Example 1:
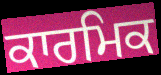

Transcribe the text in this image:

ਕਾਰਮਿਕ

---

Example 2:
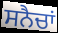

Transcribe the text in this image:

ਸਨੈਚਾਂ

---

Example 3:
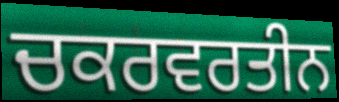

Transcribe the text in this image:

ਚਕਰਵਰਤੀਨ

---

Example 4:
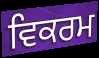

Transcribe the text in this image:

ਵਿਕਰਮ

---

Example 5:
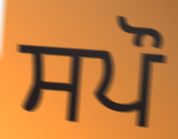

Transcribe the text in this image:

ਸਪੌ